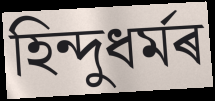
হিন্দুধৰ্মৰ